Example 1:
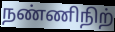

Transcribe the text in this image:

நண்ணிநிற்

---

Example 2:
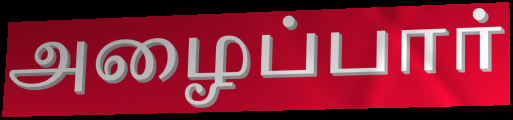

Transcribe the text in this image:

அழைப்பார்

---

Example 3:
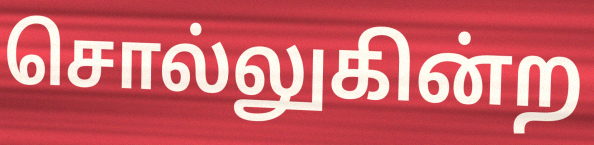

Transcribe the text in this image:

சொல்லுகின்ற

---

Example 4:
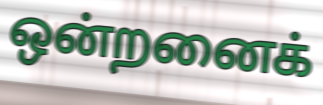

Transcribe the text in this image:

ஒன்றனைக்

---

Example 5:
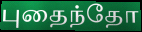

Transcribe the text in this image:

புதைந்தோ